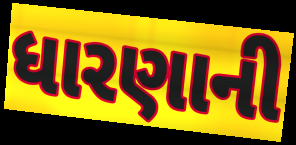
ધારણાની